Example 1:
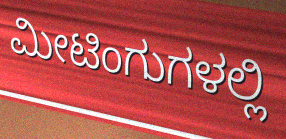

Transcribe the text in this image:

ಮೀಟಿಂಗುಗಳಲ್ಲಿ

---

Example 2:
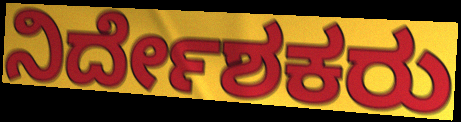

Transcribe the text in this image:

ನಿರ್ದೇಶಕರು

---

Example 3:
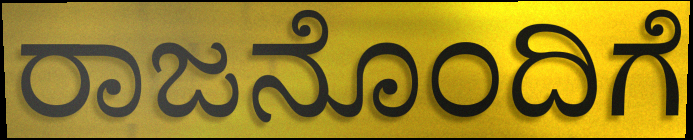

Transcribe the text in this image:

ರಾಜನೊಂದಿಗೆ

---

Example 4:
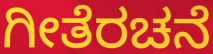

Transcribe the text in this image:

ಗೀತೆರಚನೆ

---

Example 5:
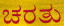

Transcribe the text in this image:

ಚರತು